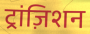
ट्रांज़िशन